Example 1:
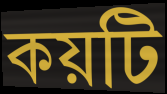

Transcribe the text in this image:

কয়টি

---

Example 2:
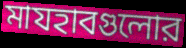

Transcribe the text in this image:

মাযহাবগুলোর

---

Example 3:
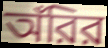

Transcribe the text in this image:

অঁরির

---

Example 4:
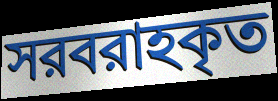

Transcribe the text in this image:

সরবরাহকৃত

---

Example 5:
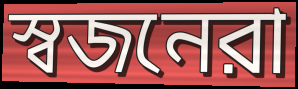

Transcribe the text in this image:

স্বজনেরা